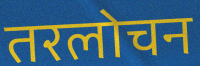
तरलोचन